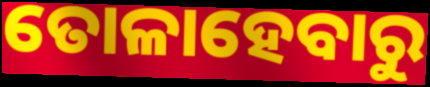
ତୋଳାହେବାରୁ